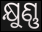
କ୍ଷୁଣ୍ଣ